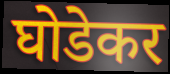
घोडेकर